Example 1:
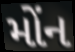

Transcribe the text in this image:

મોંન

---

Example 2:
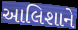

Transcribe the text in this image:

આલિશાને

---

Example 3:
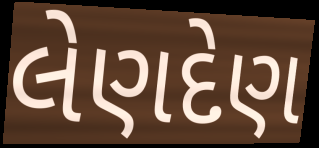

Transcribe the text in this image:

લેણદેણ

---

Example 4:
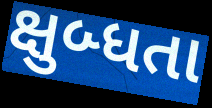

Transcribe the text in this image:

ક્ષુબ્ધતા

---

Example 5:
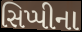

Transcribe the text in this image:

સિપ્પીના